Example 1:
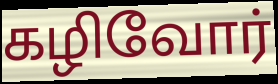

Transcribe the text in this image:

கழிவோர்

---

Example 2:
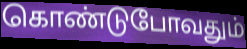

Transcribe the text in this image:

கொண்டுபோவதும்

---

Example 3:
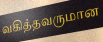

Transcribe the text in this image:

வகித்தவருமான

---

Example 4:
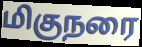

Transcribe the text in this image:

மிகுநரை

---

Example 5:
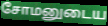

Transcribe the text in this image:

சோமனுடைய